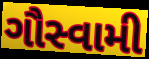
ગૌસ્વામી